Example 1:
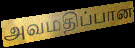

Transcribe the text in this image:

அவமதிப்பான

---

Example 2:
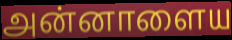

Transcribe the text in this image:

அன்னாளைய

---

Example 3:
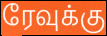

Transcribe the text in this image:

ரேவுக்கு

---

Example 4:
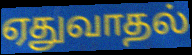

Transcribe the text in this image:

ஏதுவாதல்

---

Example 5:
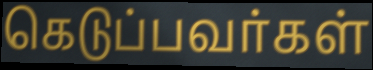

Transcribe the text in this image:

கெடுப்பவர்கள்